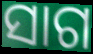
ସାଗ